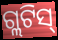
ଗ୍ଲଟିସ୍